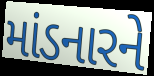
માંડનારને